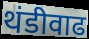
थंडीवाढ